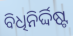
ବିଧିନିର୍ଦ୍ଦିଷ୍ଟ